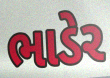
ભાડેર